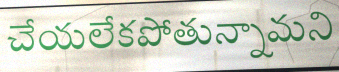
చేయలేకపోతున్నామని